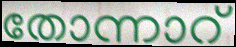
തോന്നാറ്